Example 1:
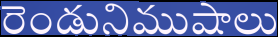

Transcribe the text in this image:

రెండునిముషాలు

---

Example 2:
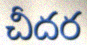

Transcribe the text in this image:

చీదర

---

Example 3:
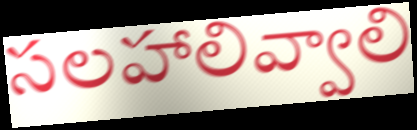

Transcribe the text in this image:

సలహాలివ్వాలి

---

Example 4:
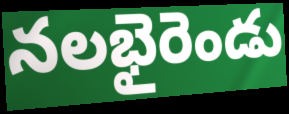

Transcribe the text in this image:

నలభైరెండు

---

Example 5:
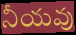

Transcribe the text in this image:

నీయవు